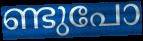
ണ്ടുപോ